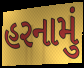
હરનામું